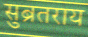
सुब्रतराय